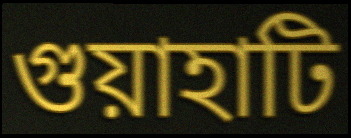
গুয়াহাটি